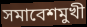
সমাবেশমুখী